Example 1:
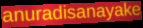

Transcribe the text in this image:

anuradisanayake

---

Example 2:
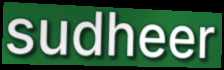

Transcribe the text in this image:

sudheer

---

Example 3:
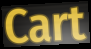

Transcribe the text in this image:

Cart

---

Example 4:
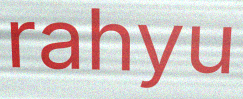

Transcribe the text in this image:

rahyu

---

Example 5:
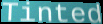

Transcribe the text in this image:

Tinted